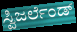
ಸ್ವಿಜರ್ಲೆಂಡ್